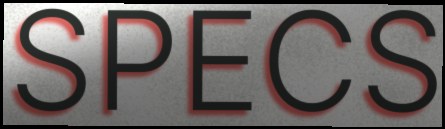
SPECS